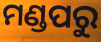
ମଣ୍ଡପରୁ